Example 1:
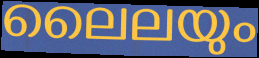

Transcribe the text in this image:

ലൈലയും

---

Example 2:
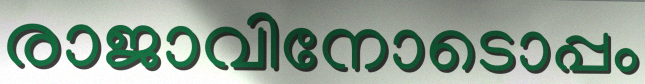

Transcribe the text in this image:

രാജാവിനോടൊപ്പം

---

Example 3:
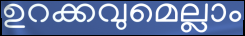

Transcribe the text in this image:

ഉറക്കവുമെല്ലാം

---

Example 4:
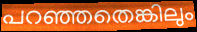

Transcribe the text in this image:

പറഞ്ഞതെങ്കിലും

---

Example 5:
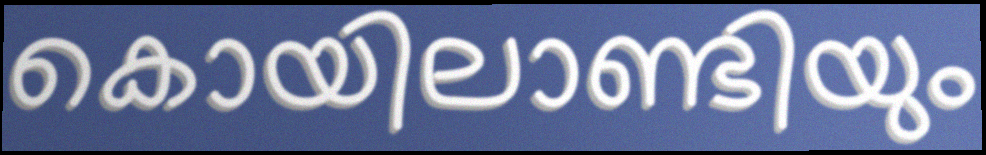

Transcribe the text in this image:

കൊയിലാണ്ടിയും